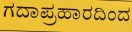
ಗದಾಪ್ರಹಾರದಿಂದ